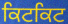
ਕਿਟਕਿਟ